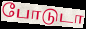
போடுடா